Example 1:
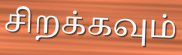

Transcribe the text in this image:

சிறக்கவும்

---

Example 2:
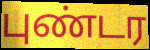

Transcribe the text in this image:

புண்டர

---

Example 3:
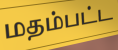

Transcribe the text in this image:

மதம்பட்ட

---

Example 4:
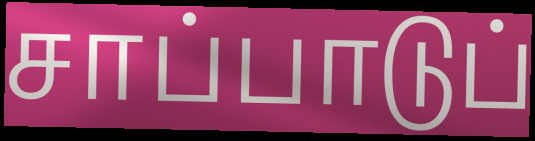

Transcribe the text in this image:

சாப்பாடுப்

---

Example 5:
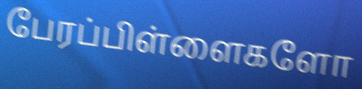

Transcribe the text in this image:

பேரப்பிள்ளைகளோ